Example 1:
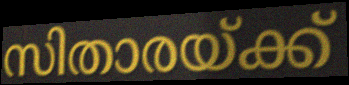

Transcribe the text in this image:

സിതാരയ്ക്ക്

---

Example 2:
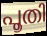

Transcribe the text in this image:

പൂതി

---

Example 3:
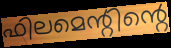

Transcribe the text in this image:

ഫിലമെന്റിന്റെ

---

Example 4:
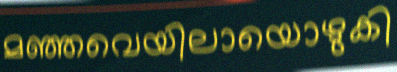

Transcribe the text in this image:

മഞ്ഞവെയിലായൊഴുകി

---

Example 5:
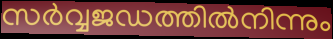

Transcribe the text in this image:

സർവ്വജഡത്തിൽനിന്നും